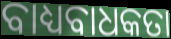
ବାଧ୍ୟବାଧକତା